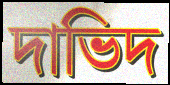
দাভিদ